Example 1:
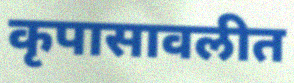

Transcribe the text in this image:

कृपासावलीत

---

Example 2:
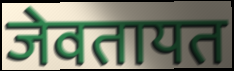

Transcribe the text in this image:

जेवतायत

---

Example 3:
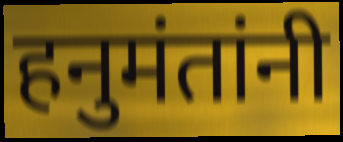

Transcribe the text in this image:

हनुमंतांनी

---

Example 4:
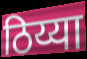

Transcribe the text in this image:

ठिय्या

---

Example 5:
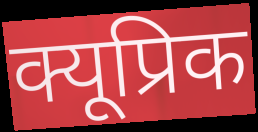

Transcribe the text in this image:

क्यूप्रिक